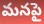
మనపై